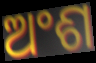
ଅଂଶ